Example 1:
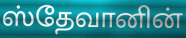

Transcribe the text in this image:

ஸ்தேவானின்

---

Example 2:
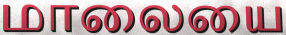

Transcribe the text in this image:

மாலையை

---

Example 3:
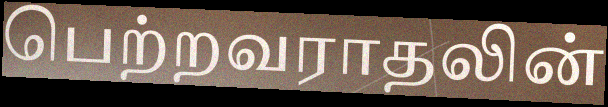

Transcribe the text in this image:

பெற்றவராதலின்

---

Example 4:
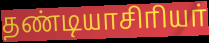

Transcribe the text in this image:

தண்டியாசிரியர்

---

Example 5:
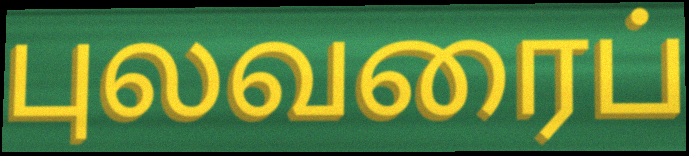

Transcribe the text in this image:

புலவரைப்